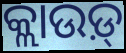
କ୍ଲାଉଡ଼୍